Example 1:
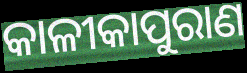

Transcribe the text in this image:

କାଳୀକାପୁରାଣ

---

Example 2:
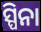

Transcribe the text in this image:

ସ୍ପିନା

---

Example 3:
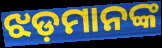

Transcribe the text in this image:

ଝଡ଼ମାନଙ୍କ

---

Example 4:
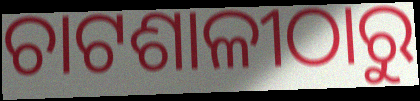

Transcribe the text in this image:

ଚାଟଶାଳୀଠାରୁ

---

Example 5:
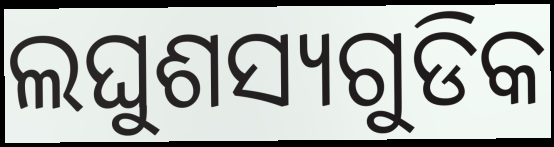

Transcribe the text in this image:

ଲଘୁଶସ୍ୟଗୁଡିକ